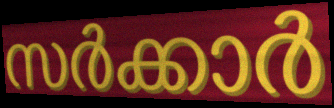
സർക്കാർ